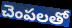
చెంపలతో